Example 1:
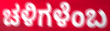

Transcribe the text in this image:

ಚಳಿಗಳೆಂಬ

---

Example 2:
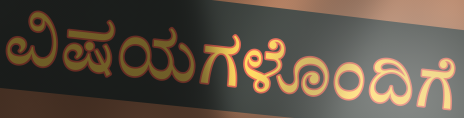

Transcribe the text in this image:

ವಿಷಯಗಳೊಂದಿಗೆ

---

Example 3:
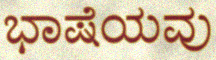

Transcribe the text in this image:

ಭಾಷೆಯವು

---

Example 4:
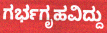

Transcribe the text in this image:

ಗರ್ಭಗೃಹವಿದ್ದು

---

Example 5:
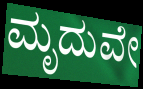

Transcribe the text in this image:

ಮೃದುವೇ